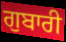
ਗੁਬਾਰੀ